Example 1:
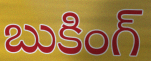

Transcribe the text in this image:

బుకింగ్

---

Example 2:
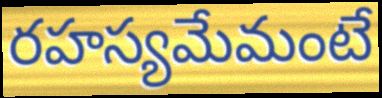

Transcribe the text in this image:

రహస్యమేమంటే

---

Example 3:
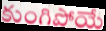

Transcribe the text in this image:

కుంగిపోయే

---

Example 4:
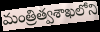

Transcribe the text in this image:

మంత్రిత్వశాఖలోని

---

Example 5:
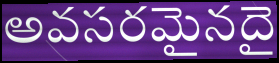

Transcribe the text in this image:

అవసరమైనదై